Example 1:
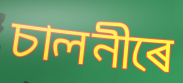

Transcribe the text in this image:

চালনীৰে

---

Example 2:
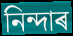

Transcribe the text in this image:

নিন্দাৰ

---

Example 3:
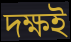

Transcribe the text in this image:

দক্ষই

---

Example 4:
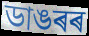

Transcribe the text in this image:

ডাঙৰৰ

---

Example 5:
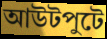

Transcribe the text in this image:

আউটপুটে